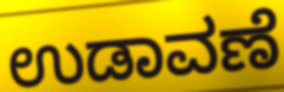
ಉಡಾವಣೆ